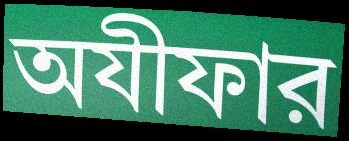
অযীফার